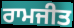
ਰਾਮਜੀਤ